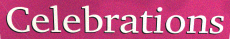
Celebrations